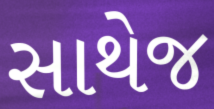
સાથેજ